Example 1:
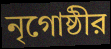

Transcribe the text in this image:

নৃগোষ্ঠীর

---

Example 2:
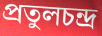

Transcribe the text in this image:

প্রতুলচন্দ্র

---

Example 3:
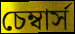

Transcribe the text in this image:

চেম্বার্স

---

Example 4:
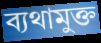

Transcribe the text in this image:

ব্যথামুক্ত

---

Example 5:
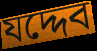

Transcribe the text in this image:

যদ্দেব